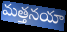
మత్తనయా